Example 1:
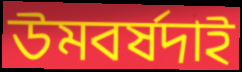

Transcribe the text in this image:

উমবৰ্ষদাই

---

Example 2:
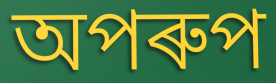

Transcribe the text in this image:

অপৰুপ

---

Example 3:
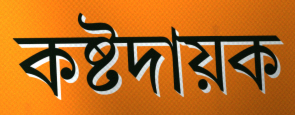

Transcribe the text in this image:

কষ্টদায়ক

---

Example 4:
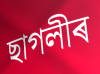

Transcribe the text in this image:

ছাগলীৰ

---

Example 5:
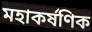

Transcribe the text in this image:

মহাকৰ্ষণিক